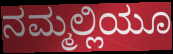
ನಮ್ಮಲ್ಲಿಯೂ